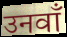
उनवाँ